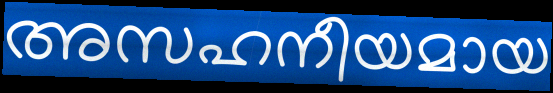
അസഹനീയമായ